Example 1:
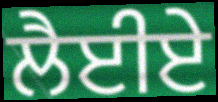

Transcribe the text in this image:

ਲੈਈਏ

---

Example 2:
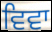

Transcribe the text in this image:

ਵਿਵਾ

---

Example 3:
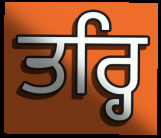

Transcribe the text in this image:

ਤਰ੍ਹਿ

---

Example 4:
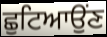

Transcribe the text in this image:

ਛੁਟਿਆਉਂਣ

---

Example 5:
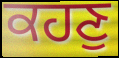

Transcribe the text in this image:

ਕਹਣੁ